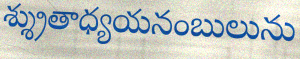
శ్శ్రుతాధ్యయనంబులును